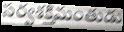
సర్వశక్తిమంతుడు